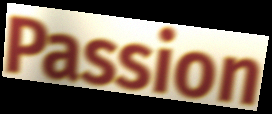
Passion